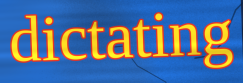
dictating